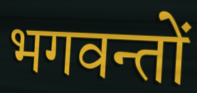
भगवन्तों